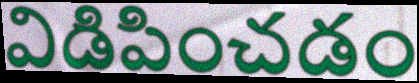
విడిపించడం